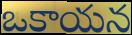
ఒకాయన